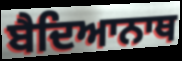
ਬੈਦਿਆਨਾਥ